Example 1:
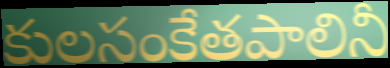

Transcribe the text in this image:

కులసంకేతపాలినీ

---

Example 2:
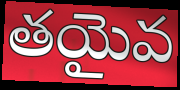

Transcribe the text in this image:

తయైవ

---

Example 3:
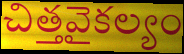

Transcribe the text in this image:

చిత్తవైకల్యం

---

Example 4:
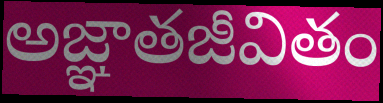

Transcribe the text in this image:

అజ్ఞాతజీవితం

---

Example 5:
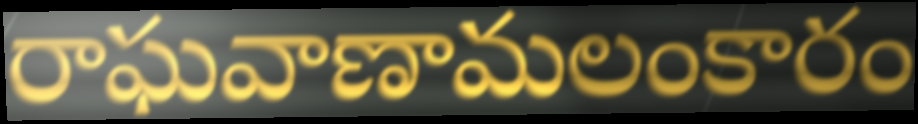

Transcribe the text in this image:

రాఘవాణామలంకారం